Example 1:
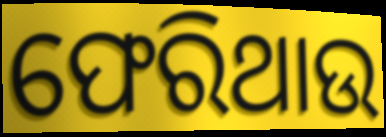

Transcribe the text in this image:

ଫେରିଥାଉ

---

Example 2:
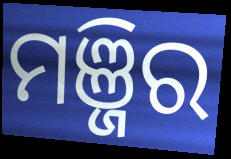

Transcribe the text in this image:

ମଞ୍ଜିର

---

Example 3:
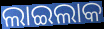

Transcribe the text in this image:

ଲାଇଲାକ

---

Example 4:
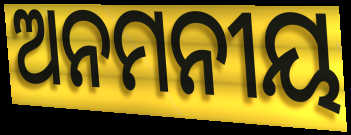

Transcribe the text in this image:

ଅନମନୀୟ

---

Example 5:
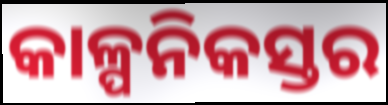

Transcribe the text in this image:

କାଳ୍ପନିକସ୍ତର